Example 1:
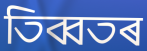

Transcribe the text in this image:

তিব্বতৰ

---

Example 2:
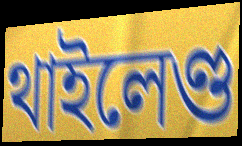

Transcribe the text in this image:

থাইলেণ্ড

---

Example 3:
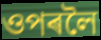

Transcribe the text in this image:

ওপৰলৈ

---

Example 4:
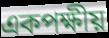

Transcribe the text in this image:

একপক্ষীয়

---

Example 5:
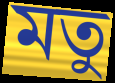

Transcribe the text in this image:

মতু